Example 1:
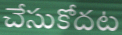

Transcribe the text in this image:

చేసుకోదట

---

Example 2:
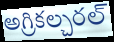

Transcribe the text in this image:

అగ్రికల్చరల్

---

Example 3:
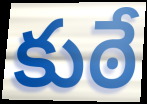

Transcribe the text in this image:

కుఠే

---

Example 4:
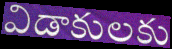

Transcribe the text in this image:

విడాకులకు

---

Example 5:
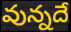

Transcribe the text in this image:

వున్నదే